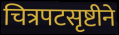
चित्रपटसृष्टीने